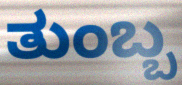
ತುಂಬ್ಬ